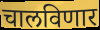
चालविणार